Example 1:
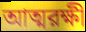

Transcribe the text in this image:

আত্মরক্ষী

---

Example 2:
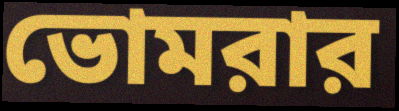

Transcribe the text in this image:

ভোমরার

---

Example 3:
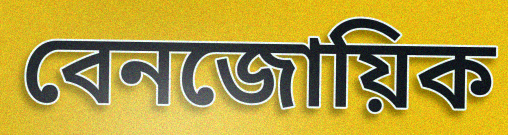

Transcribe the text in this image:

বেনজোয়িক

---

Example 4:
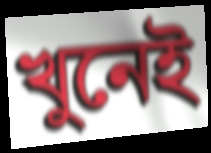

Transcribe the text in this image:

খুনেই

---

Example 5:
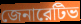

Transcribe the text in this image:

জেনারেটিভ